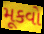
મૂકવો